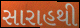
સારાહથી